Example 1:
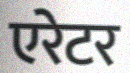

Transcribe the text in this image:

एरेटर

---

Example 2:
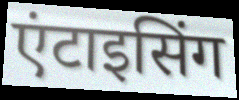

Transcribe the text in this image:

एंटाइसिंग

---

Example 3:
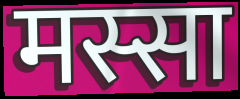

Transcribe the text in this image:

मस्‍सा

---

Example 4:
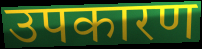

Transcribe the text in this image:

उपकारण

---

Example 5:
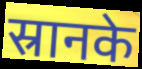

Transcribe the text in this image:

स्रानके